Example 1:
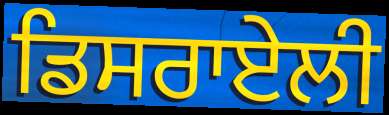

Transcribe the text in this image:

ਡਿਸਰਾਏਲੀ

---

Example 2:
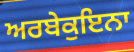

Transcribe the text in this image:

ਅਰਬੇਕੁਇਨਾ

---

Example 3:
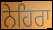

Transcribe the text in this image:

ਨੇਹਿਰਾ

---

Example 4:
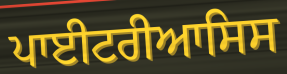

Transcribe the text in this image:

ਪਾਈਟਰੀਆਸਿਸ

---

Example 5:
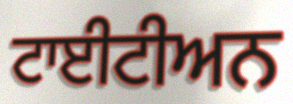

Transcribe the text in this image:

ਟਾਈਟੀਅਨ